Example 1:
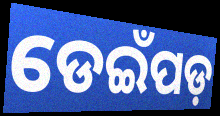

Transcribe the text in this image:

ଡେଇଁପଡ଼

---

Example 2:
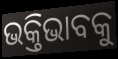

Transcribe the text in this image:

ଭକ୍ତିଭାବକୁ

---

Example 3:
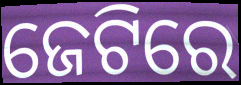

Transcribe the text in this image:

ଜେଟିରେ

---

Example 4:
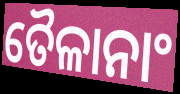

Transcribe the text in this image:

ତୈଳାନାଂ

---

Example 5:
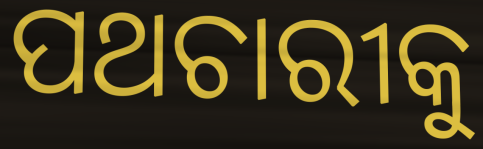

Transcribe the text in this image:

ପଥଚାରୀକୁ